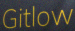
Gitlow